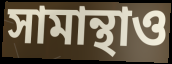
সামান্থাও